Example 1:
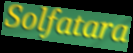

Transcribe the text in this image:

Solfatara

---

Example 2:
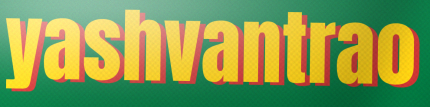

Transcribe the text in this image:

yashvantrao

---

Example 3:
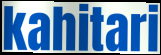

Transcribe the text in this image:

kahitari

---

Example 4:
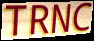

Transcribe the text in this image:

TRNC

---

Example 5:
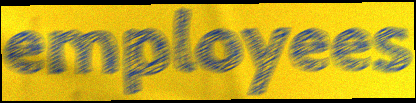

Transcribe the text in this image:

employees